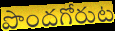
పొందగోరుట